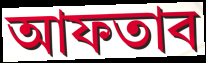
আফতাব